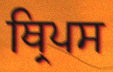
ਥ੍ਰਿਪਸ